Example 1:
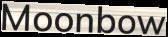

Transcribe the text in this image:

Moonbow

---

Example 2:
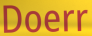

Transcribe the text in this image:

Doerr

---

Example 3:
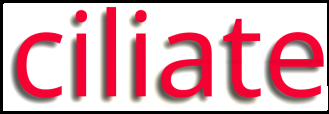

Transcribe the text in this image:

ciliate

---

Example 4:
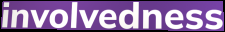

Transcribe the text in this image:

involvedness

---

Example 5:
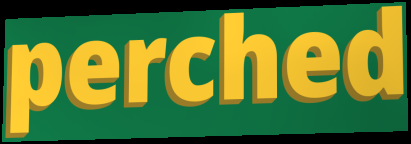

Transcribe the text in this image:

perched